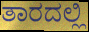
ತಾರದಲ್ಲಿ